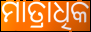
ମାତ୍ରାଧିକ